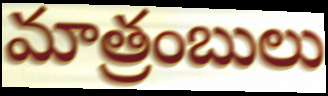
మాత్రంబులు